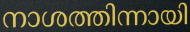
നാശത്തിന്നായി